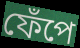
ফেঁপে